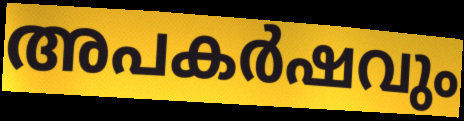
അപകർഷവും